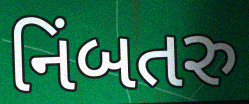
નિંબતરુ